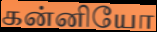
கன்னியோ